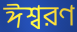
ঈশ্বরণ